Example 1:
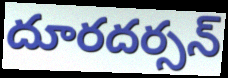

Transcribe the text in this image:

దూరదర్సన్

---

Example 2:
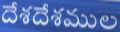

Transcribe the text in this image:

దేశదేశముల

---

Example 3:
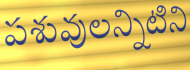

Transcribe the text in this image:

పశువులన్నిటిని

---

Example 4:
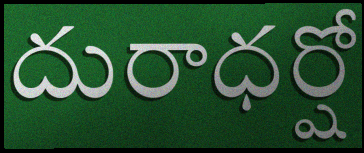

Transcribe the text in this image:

దురాధర్షో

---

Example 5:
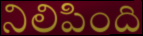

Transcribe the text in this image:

నిలిపింది